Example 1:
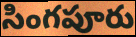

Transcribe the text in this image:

సింగపూరు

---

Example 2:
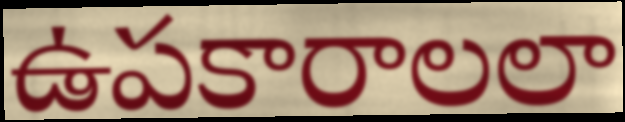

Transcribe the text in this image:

ఉపకారాలలా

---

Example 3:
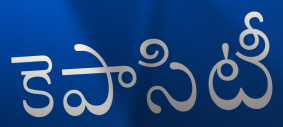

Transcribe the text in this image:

కెపాసిటీ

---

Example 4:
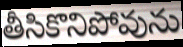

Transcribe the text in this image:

తీసికొనిపోవును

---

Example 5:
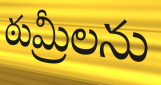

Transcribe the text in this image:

ఠుమ్రీలను